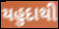
યહુદાથી